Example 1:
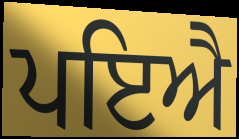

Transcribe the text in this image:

ਪਇਐ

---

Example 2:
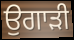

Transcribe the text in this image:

ਉਗਾੜੀ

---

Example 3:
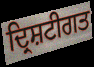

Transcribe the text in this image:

ਦ੍ਰਿਸ਼ਟੀਗਤ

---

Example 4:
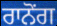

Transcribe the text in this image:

ਰਾਨੋਂਗ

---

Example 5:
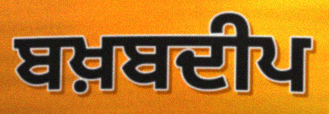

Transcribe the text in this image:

ਬਖ਼ਬਦੀਪ